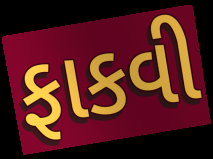
ફાકવી